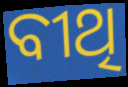
ବୀଥି